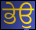
ਭੇਉ